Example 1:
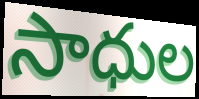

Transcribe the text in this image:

సాధుల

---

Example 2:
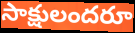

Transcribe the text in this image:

సాక్షులందరూ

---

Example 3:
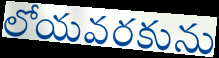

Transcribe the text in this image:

లోయవరకును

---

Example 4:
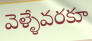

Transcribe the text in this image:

వెళ్ళేవరకూ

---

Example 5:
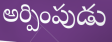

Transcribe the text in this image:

అర్పింపుడు